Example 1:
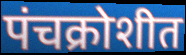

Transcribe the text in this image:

पंचक्रोशीत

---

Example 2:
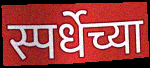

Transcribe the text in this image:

स्पर्धेच्या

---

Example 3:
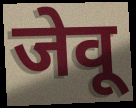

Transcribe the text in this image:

जेवू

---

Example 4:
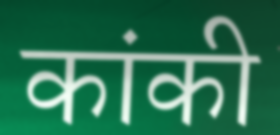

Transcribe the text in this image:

कांकी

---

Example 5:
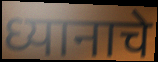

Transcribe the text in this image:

ध्यानाचे